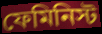
ফেমিনিস্ট